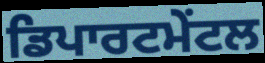
ਡਿਪਾਰਟਮੇਂਟਲ